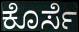
ಕೊರ್ಸೆ